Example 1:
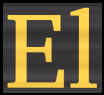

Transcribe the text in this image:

El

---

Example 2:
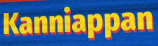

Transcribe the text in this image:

Kanniappan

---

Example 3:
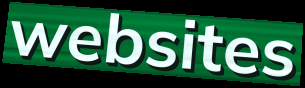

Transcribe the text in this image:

websites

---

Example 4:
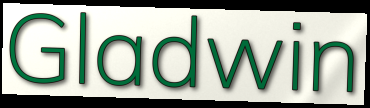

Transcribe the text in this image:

Gladwin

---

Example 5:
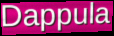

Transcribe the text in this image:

Dappula